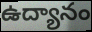
ఉద్యానం